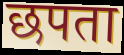
छपता